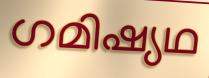
ഗമിഷ്യഥ